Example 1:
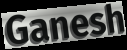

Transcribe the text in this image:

Ganesh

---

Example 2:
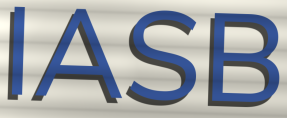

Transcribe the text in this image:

IASB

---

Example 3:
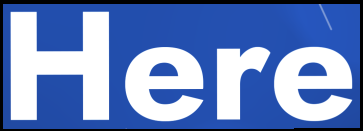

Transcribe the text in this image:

Here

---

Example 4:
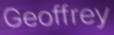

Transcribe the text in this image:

Geoffrey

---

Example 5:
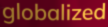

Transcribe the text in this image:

globalized